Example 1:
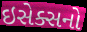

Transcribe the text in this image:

ઇસેક્સનો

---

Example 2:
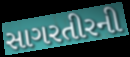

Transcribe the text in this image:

સાગરતીરની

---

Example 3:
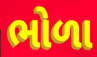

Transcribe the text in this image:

ભોળા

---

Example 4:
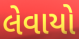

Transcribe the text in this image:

લેવાયો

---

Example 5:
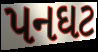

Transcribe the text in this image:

પનઘટ